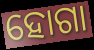
ହୋଗା